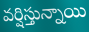
వర్షిస్తున్నాయి